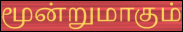
மூன்றுமாகும்